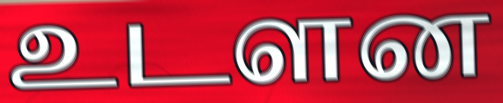
உடளன